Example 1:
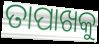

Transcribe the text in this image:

ତାପାଖକୁ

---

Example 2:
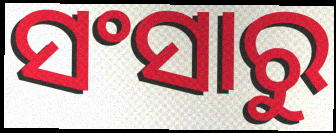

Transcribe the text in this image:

ସଂସାରୁ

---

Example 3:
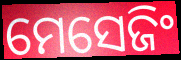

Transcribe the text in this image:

ମେସେଜିଂ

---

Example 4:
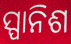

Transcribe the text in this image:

ସ୍ପାନିଶ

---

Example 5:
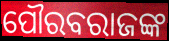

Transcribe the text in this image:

ପୌରବରାଜଙ୍କ